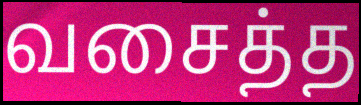
வசைத்த